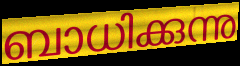
ബാധിക്കുന്നു